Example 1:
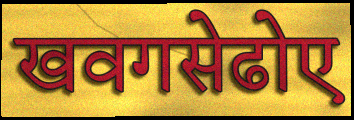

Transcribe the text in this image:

खवगसेढोए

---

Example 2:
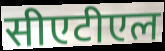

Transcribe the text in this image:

सीएटीएल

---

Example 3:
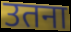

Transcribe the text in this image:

उतना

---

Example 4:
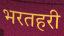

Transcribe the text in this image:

भरतहरी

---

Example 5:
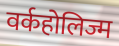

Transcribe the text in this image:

वर्कहोलिज्म